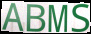
ABMS